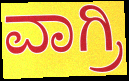
ವಾಗ್ರಿ